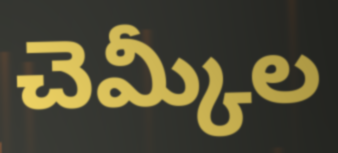
చెమ్కీల